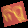
ନିପୁ